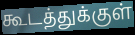
கூடத்துக்குள்